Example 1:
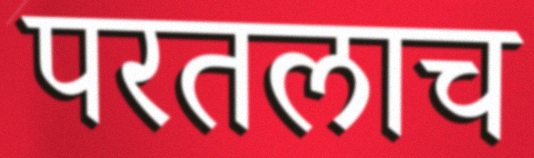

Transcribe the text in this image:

परतलाच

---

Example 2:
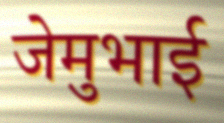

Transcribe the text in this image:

जेमुभाई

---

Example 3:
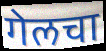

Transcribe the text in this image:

गेलचा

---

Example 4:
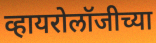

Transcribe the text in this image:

व्हायरोलॉजीच्या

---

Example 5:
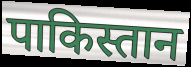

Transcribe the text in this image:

पाकिस्तान